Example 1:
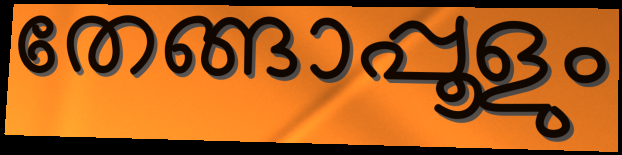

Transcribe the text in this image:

തേങ്ങാപ്പൂളും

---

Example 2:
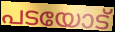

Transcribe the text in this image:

പടയോട്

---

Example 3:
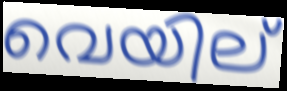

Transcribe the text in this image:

വെയില്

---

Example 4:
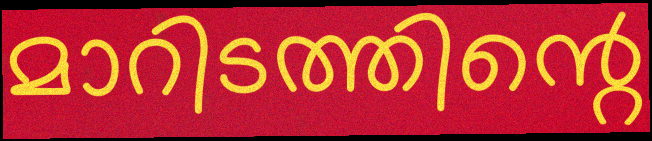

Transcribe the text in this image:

മാറിടത്തിന്റെ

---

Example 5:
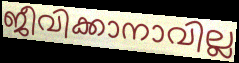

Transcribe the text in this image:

ജീവിക്കാനാവില്ല